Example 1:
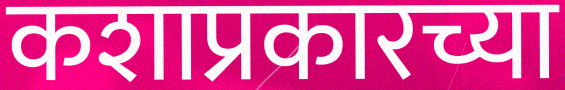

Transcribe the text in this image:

कशाप्रकारच्या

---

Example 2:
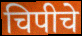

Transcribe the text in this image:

चिपीचे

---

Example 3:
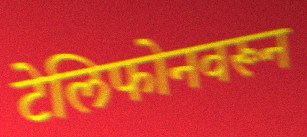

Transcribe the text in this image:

टेलिफोनवरून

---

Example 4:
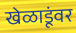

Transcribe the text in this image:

खेळाडूंवर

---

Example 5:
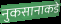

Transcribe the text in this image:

नुकसानाकडे